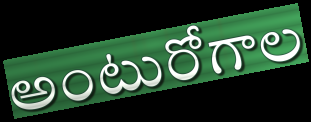
అంటురోగాల